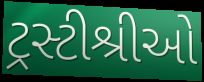
ટ્રસ્ટીશ્રીઓ